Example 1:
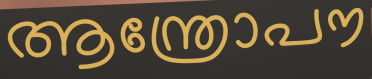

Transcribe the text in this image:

ആന്ത്രോപൗ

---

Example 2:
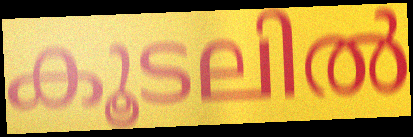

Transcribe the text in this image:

കൂടലിൽ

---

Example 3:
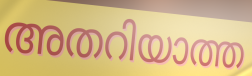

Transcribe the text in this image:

അതറിയാത്ത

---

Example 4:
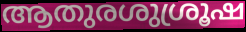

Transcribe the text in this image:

ആതുരശുശ്രൂഷ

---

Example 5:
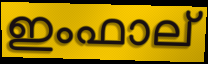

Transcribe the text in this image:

ഇംഫാല്